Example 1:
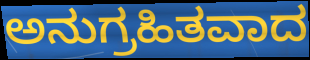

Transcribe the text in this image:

ಅನುಗ್ರಹಿತವಾದ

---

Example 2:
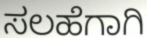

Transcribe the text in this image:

ಸಲಹೆಗಾಗಿ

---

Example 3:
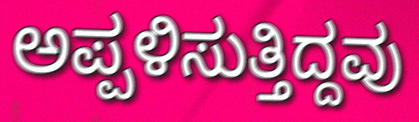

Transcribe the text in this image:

ಅಪ್ಪಳಿಸುತ್ತಿದ್ದವು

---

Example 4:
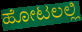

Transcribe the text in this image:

ಹೋಟಲಲ್ಲಿ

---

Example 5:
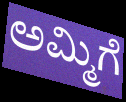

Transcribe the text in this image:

ಅಮ್ಮಿಗೆ